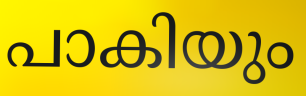
പാകിയും